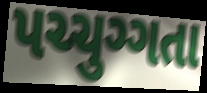
પચ્ચુગ્ગતા